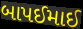
બાપઈમાઈ